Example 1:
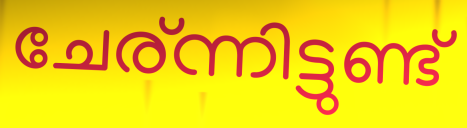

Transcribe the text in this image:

ചേര്ന്നിട്ടുണ്ട്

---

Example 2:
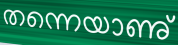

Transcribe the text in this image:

തന്നെയാണു്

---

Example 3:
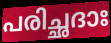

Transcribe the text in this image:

പരിച്ഛദാഃ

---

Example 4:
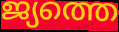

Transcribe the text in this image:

ജ്യത്തെ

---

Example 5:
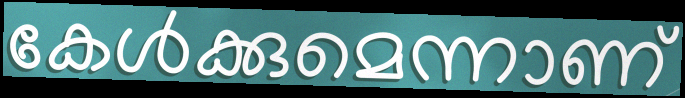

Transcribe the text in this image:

കേൾക്കുമെന്നാണ്